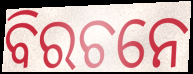
ବିରଚନେ